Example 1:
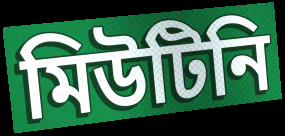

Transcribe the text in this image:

মিউটিনি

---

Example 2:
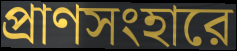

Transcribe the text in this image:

প্রাণসংহারে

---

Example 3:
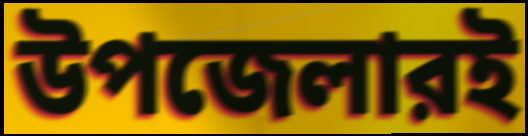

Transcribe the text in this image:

উপজেলারই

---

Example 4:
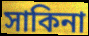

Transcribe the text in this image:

সাকিনা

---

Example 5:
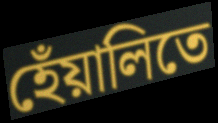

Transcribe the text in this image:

হেঁয়ালিতে